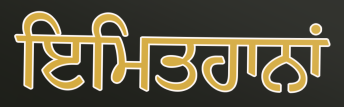
ਇਮਿਤਹਾਨਾਂ